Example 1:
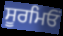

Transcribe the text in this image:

ਸੂਰਮਿਓਂ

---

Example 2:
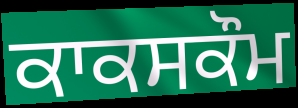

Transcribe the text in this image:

ਕਾਕਸਕੌਮ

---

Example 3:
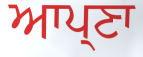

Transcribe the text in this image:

ਆਪ੍ਣਾ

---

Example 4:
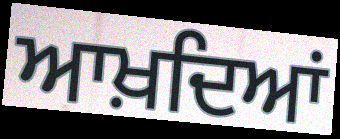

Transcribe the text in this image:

ਆਖ਼ਦਿਆਂ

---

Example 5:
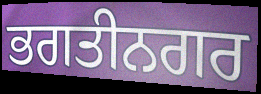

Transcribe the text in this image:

ਭਗਤੀਨਗਰ